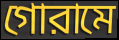
গোরামে